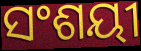
ସଂଶୟୀ